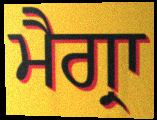
ਮੈਗ੍ਰਾ